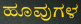
ಹೂವುಗಳ